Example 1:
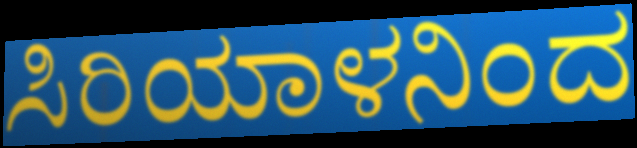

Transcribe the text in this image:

ಸಿರಿಯಾಳನಿಂದ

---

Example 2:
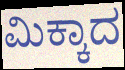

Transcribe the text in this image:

ಮಿಕ್ಕಾದ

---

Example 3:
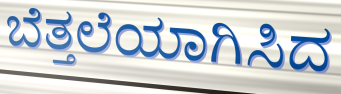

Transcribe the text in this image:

ಬೆತ್ತಲೆಯಾಗಿಸಿದ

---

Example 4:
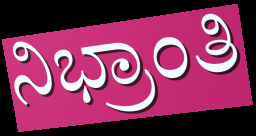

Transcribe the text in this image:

ನಿಭ್ರಾಂತಿ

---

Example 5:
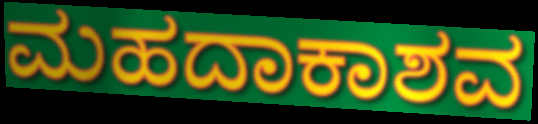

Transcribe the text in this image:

ಮಹದಾಕಾಶವ